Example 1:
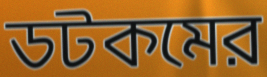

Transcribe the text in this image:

ডটকমের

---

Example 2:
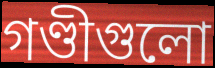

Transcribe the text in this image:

গণ্ডীগুলো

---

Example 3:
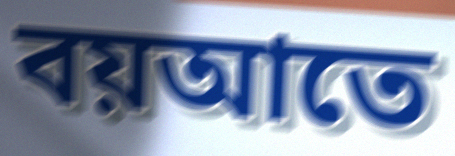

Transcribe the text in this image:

বয়আতে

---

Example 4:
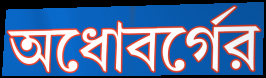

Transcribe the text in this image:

অধোবর্গের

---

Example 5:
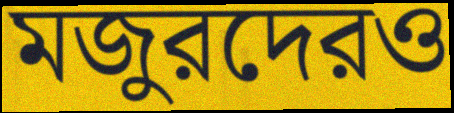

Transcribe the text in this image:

মজুরদেরও